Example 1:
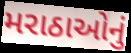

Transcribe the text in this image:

મરાઠાઓનું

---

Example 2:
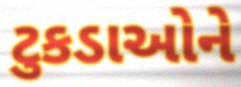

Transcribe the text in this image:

ટુકડાઓને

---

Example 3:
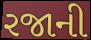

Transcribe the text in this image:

રજાની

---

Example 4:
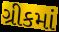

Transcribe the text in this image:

ગ્રીકમાં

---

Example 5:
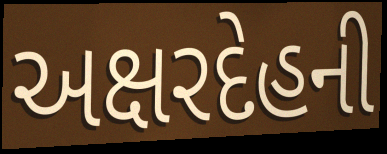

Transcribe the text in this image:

અક્ષરદેહની